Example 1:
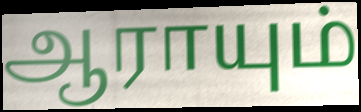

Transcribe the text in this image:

ஆராயும்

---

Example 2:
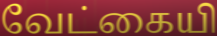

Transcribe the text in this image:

வேட்கையி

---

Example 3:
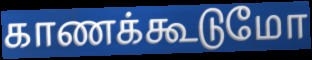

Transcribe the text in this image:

காணக்கூடுமோ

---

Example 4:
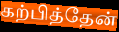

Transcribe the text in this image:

கற்பித்தேன்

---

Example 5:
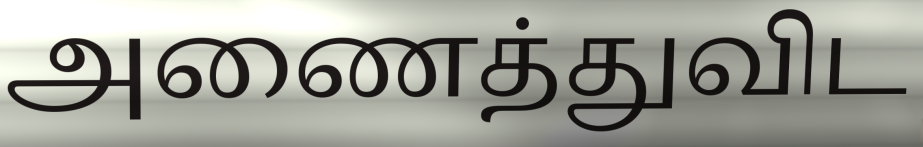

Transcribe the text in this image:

அணைத்துவிட